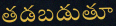
తడబడుతూ